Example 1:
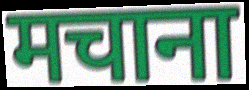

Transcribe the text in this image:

मचाना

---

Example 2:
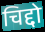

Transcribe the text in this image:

चिद्दो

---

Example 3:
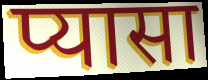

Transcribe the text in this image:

प्यासा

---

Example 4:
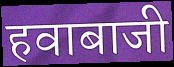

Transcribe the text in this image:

हवाबाजी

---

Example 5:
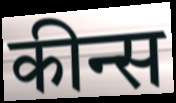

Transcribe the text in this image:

कीन्स